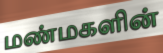
மண்மகளின்